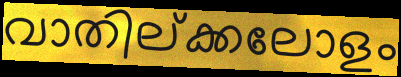
വാതില്ക്കലോളം